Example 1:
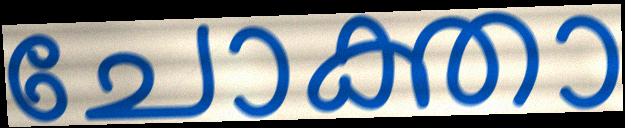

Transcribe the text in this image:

ചോക്താ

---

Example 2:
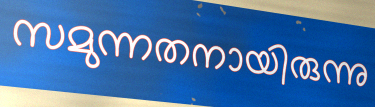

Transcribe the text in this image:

സമുന്നതനായിരുന്നു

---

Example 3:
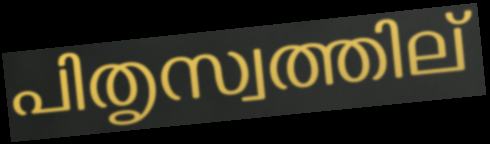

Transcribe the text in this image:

പിതൃസ്വത്തില്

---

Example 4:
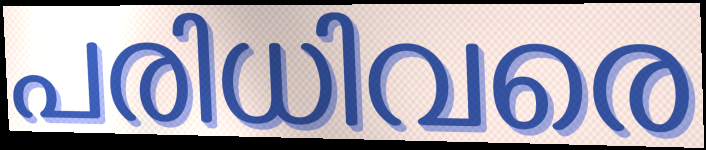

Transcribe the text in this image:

പരിധിവരെ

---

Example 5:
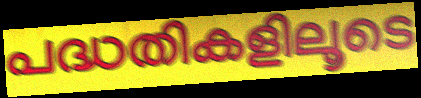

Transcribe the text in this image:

പദ്ധതികളിലൂടെ